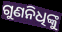
ଗୁଣନିଧିଙ୍କୁ